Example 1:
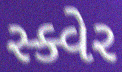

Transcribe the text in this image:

સ્ક્વેર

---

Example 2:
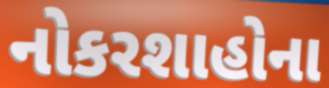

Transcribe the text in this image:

નોકરશાહોના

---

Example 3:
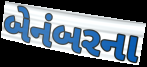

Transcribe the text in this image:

બેનંબરના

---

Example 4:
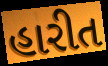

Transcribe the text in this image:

હારીત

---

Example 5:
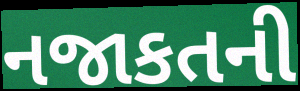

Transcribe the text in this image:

નજાકતની